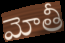
మోతీ